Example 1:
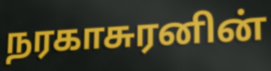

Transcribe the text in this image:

நரகாசுரனின்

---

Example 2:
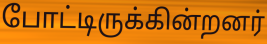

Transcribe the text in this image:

போட்டிருக்கின்றனர்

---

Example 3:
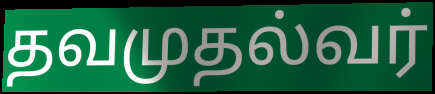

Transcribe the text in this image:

தவமுதல்வர்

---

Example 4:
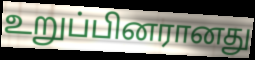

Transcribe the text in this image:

உறுப்பினரானது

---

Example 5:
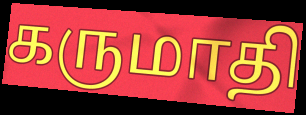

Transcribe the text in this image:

கருமாதி